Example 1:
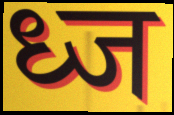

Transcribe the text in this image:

ध्ज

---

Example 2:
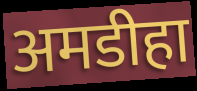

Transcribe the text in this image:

अमडीहा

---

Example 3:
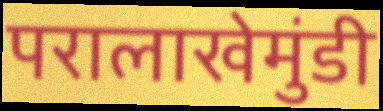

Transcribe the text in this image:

परालाखेमुंडी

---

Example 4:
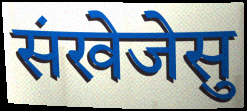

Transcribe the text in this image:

संखेजेसु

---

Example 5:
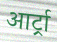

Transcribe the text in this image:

आर्ट्रा